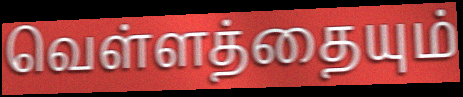
வெள்ளத்தையும்